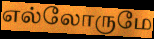
எல்லோருமே